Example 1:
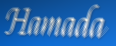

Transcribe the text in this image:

Hamada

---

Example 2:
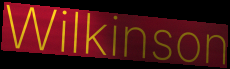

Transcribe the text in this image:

Wilkinson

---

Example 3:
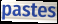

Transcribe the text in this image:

pastes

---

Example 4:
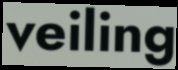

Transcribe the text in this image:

veiling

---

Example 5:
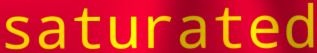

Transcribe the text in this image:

saturated